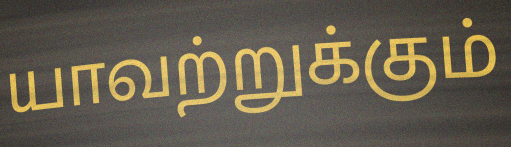
யாவற்றுக்கும்